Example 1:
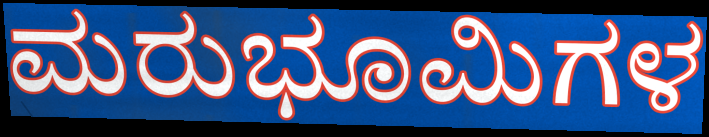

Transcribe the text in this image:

ಮರುಭೂಮಿಗಳ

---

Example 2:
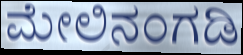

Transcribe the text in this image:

ಮೇಲಿನಂಗಡಿ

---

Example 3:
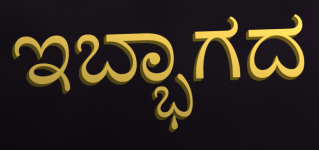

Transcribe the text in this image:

ಇಬ್ಭಾಗದ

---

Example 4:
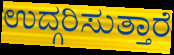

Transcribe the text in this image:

ಉದ್ಗರಿಸುತ್ತಾರೆ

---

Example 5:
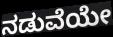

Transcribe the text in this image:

ನಡುವೆಯೇ